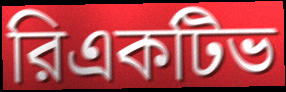
রিএকটিভ